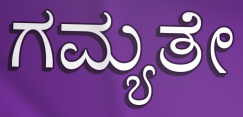
ಗಮ್ಯತೇ